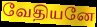
வேதியனே